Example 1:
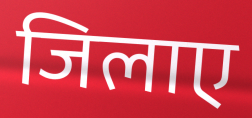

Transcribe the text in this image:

जिलाए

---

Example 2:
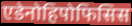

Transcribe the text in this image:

एडेनोहिपोफिसिस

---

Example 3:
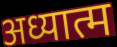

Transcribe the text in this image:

अध्यात्म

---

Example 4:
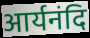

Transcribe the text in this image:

आर्यनंदि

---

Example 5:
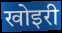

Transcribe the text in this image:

खोइरी